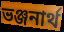
ভঞ্জনার্থ